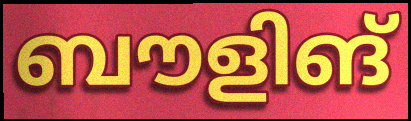
ബൗളിങ്